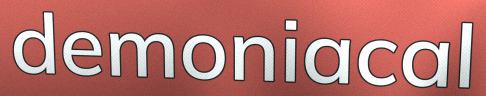
demoniacal